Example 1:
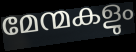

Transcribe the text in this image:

മേന്മകളും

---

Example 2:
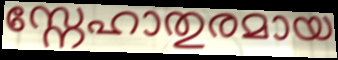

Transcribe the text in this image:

സ്നേഹാതുരമായ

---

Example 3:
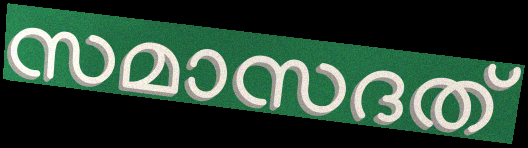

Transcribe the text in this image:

സമാസദത്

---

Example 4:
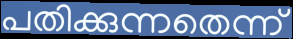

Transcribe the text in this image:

പതിക്കുന്നതെന്ന്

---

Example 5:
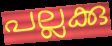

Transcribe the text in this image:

പല്ലക്കു